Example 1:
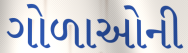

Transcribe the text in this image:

ગોળાઓની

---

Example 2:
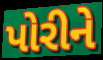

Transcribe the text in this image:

પોરીને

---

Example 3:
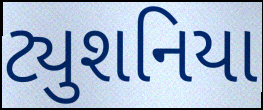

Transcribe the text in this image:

ટ્યુશનિયા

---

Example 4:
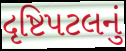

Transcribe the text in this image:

દૃષ્ટિપટલનું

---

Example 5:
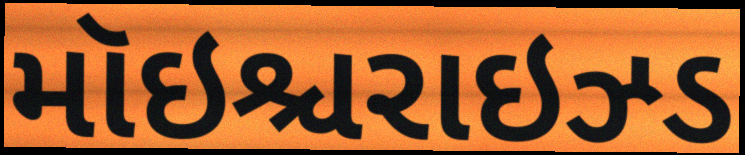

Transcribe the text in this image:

મૉઇશ્ચરાઇઝ્ડ